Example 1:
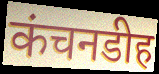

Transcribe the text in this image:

कंचनडीह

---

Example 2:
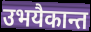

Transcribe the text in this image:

उभयैकान्त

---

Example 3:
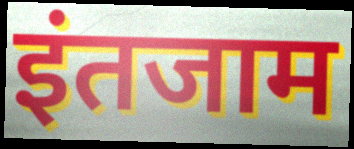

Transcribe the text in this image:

इंतजाम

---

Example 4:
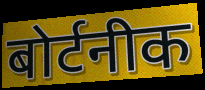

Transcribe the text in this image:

बोर्टनीक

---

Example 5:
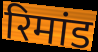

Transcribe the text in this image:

रिमांड